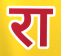
रा